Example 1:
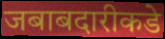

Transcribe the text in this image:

जबाबदारीकडे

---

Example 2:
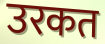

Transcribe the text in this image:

उरकत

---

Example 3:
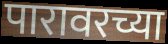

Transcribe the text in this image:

पारावरच्या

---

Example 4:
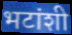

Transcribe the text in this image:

भटांशी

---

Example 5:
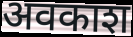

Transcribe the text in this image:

अवकाश